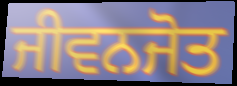
ਜੀਵਨਜੋਤ